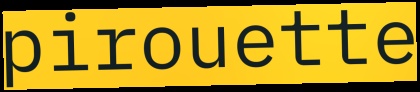
pirouette